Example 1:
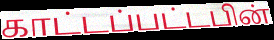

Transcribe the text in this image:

காட்டப்பட்டபின்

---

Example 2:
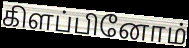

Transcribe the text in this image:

கிளப்பினோம்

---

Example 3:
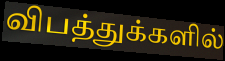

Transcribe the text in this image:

விபத்துக்களில்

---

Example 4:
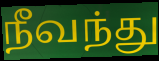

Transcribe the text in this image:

நீவந்து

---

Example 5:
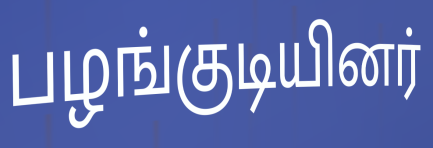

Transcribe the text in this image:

பழங்குடியினர்